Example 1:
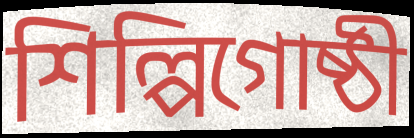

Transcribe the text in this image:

শিল্পিগোষ্ঠী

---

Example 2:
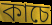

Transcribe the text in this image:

কাচে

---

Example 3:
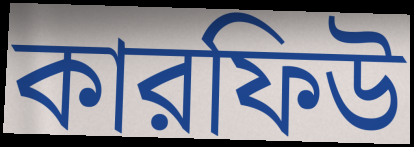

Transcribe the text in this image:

কারফিউ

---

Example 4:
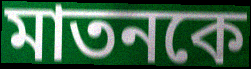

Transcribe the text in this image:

মাতনকে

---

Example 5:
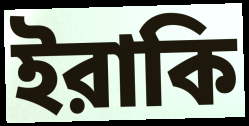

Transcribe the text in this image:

ইরাকি